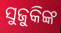
ସୁଜୁକିଙ୍କ